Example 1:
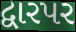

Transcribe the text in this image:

દ્વારપર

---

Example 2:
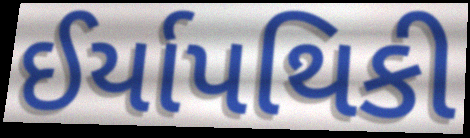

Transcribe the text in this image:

ઈર્યાપથિકી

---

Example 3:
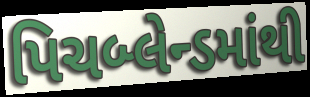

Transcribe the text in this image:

પિચબ્લેન્ડમાંથી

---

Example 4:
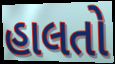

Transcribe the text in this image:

હાલતો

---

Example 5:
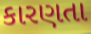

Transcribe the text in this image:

કારણતા